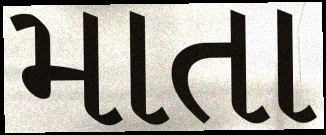
માતા